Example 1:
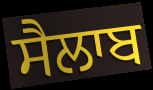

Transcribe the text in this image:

ਸੈਲਾਬ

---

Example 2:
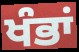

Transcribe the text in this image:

ਖੰਭਾਂ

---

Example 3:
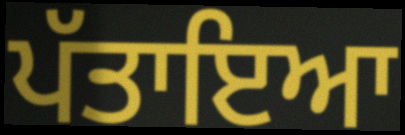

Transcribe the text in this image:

ਪੱਤਾਇਆ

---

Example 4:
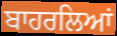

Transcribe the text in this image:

ਬਾਹਰਲਿਆਂ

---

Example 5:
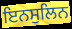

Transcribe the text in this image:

ਇਨਸੁਲਿਨ